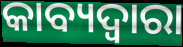
କାବ୍ୟଦ୍ୱାରା